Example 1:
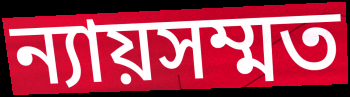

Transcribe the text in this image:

ন্যায়সম্মত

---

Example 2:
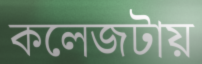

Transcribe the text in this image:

কলেজটায়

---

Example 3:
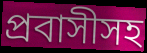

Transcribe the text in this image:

প্রবাসীসহ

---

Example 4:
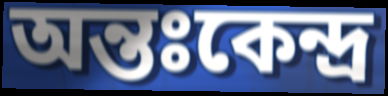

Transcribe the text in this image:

অন্তঃকেন্দ্র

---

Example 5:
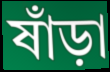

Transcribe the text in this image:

ষাঁড়া